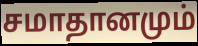
சமாதானமும்